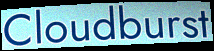
Cloudburst